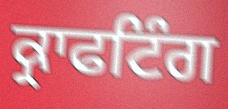
ਕ੍ਰਾਫਟਿੰਗ